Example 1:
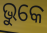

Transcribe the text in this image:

ଭୁକେ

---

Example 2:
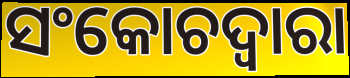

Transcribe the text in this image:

ସଂକୋଚଦ୍ୱାରା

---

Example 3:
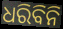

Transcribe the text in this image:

ଧରିବିନି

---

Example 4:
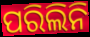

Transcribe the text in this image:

ପରିଲିନି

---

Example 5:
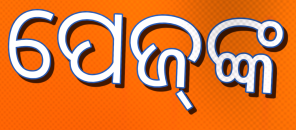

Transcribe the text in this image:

ପେଜ୍‌ଙ୍କ